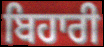
ਬਿਹਾਰੀ